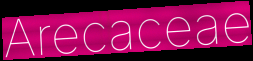
Arecaceae